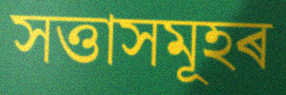
সত্তাসমূহৰ